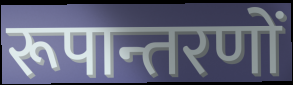
रूपान्तरणों